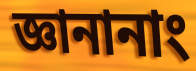
জ্ঞানানাং